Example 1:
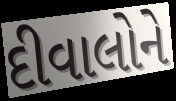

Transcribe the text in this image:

દીવાલોને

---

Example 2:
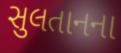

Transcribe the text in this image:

સુલતાનના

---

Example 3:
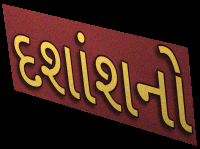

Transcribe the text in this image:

દશાંશનો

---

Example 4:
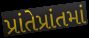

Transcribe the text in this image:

પ્રાંતેપ્રાંતમાં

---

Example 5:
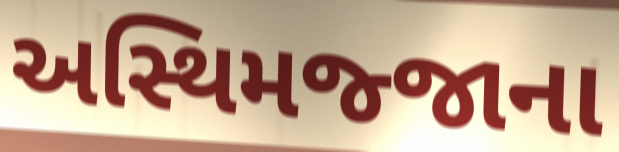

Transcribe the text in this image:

અસ્થિમજ્જાના